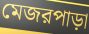
মেজরপাড়া